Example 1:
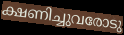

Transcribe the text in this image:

ക്ഷണിച്ചുവരോടു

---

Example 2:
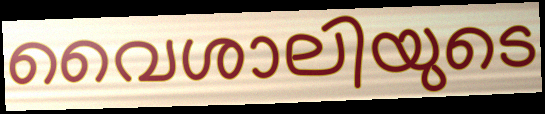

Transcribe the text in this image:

വൈശാലിയുടെ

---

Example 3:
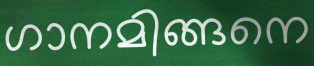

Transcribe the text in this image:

ഗാനമിങ്ങനെ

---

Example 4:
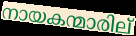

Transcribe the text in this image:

നായകന്മാരില്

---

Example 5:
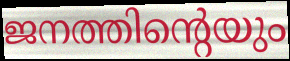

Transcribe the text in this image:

ജനത്തിന്റെയും